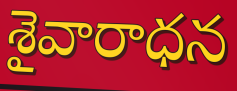
శైవారాధన